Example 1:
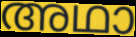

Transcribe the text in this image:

അഥാ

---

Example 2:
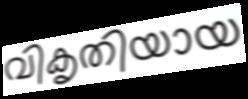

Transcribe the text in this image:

വികൃതിയായ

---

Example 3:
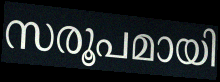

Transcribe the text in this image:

സരൂപമായി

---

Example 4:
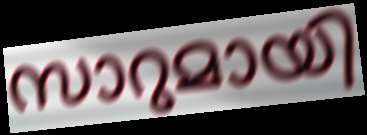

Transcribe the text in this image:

സാറുമായി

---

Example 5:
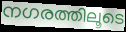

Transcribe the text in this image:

നഗരത്തിലൂടെ